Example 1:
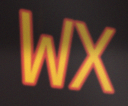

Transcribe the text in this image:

WX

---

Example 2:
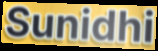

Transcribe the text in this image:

Sunidhi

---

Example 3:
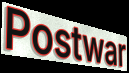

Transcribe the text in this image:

Postwar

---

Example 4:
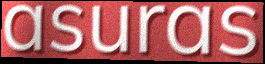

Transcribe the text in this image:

asuras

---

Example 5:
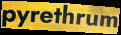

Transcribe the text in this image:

pyrethrum